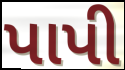
પાપી